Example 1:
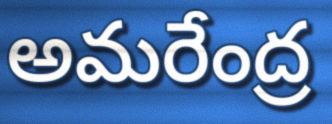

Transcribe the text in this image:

అమరేంద్ర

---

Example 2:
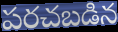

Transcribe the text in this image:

పరచబడిన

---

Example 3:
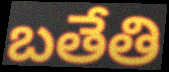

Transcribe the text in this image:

బతేతి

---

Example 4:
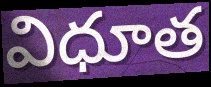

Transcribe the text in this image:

విధూత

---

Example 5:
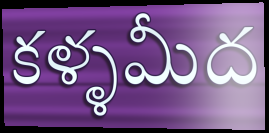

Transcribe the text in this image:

కళ్ళమీద